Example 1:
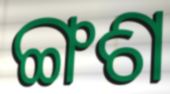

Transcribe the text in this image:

ଙ୍ଗଶ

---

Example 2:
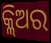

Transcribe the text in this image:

କ୍ଲିଅର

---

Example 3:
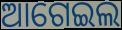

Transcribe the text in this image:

ଆଗେଇଲ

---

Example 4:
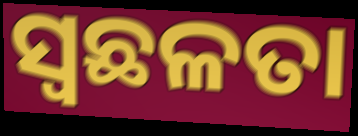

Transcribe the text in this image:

ସ୍ୱଛଳତା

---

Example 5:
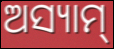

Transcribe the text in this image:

ଅସ୍ୟାମ୍